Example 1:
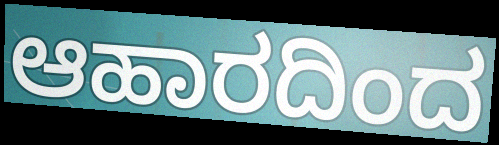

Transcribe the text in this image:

ಆಹಾರದಿಂದ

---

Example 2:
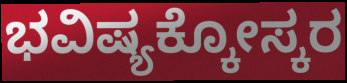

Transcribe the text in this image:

ಭವಿಷ್ಯಕ್ಕೋಸ್ಕರ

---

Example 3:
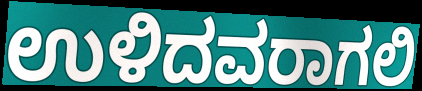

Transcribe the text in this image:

ಉಳಿದವರಾಗಲಿ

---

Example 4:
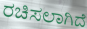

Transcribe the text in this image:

ರಚಿಸಲಾಗಿದೆ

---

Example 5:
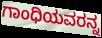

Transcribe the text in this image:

ಗಾಂಧಿಯವರನ್ನ